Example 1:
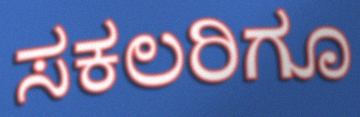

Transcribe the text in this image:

ಸಕಲರಿಗೂ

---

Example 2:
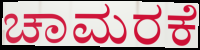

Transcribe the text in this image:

ಚಾಮರಕೆ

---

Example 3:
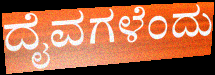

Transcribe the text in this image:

ದೈವಗಳೆಂದು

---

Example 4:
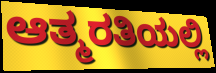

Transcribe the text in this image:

ಆತ್ಮರತಿಯಲ್ಲಿ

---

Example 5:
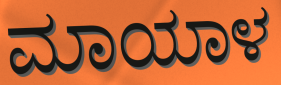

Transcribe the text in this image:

ಮಾಯಾಳ